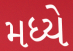
મધ્યે